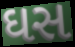
ઘસ